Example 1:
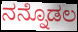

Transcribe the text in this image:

ನನ್ನೊಡಲ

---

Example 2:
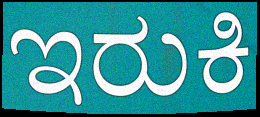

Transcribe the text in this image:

ಇರುಕಿ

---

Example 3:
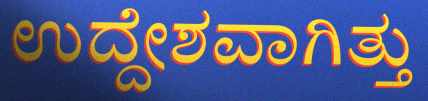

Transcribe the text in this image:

ಉದ್ದೇಶವಾಗಿತ್ತು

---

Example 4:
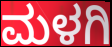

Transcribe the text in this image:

ಮಳಗಿ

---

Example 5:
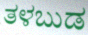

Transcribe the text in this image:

ತಳಬುಡ